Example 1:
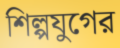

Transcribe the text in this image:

শিল্পযুগের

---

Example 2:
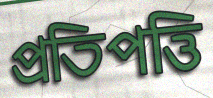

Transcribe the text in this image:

প্রতিপত্তি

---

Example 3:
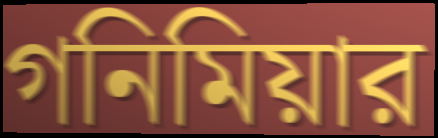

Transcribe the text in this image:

গনিমিয়ার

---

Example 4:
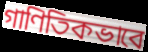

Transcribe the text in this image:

গাণিতিকভাবে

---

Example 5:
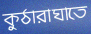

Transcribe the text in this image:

কুঠারাঘাতে